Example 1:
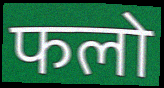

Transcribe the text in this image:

फलो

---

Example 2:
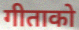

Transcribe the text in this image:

गीताको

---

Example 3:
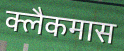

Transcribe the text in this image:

क्लैकमास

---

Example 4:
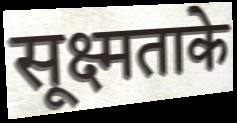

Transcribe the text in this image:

सूक्ष्मताके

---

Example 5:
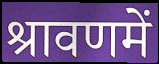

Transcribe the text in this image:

श्रावणमें